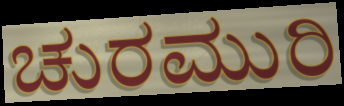
ಚುರಮುರಿ